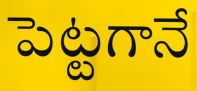
పెట్టగానే